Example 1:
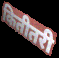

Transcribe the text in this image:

कितीतरी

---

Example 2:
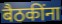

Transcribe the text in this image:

बैठकींना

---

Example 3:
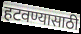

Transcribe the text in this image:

हटवण्यासाठी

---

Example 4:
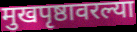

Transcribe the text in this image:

मुखपृष्ठावरल्या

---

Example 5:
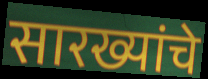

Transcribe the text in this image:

सारख्यांचे